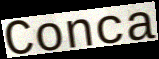
Conca